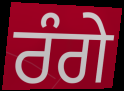
ਰੰਗੇ